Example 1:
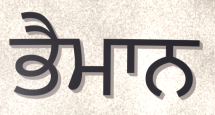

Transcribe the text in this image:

ਭੈਮਾਨ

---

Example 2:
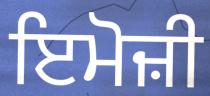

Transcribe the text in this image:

ਇਮੋਜ਼ੀ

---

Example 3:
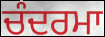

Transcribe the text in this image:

ਚੰਦਰਮਾ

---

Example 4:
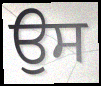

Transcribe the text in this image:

ਉਸ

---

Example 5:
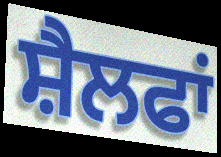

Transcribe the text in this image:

ਸ਼ੈਲਫਾਂ